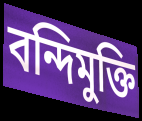
বন্দিমুক্তি